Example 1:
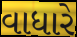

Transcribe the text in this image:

વાધારે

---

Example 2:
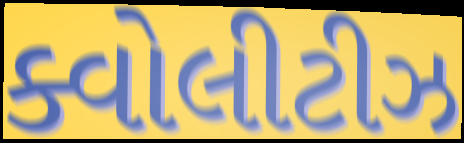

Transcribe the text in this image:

ક્વોલીટીઝ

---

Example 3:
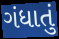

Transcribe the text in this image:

ગંધાતું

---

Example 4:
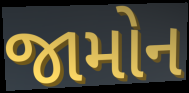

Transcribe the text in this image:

જામોન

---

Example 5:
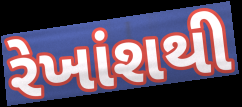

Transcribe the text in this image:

રેખાંશથી